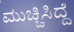
ಮುಚ್ಚಿಸಿದ್ದೆ